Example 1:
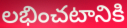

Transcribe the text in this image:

లభించటానికి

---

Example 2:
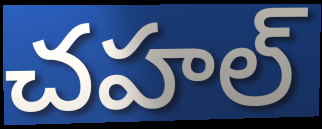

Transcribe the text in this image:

చహల్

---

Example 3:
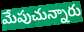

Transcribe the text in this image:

మేపుచున్నారు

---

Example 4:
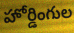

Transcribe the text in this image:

హోర్డింగుల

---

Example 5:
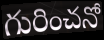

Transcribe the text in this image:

గురించనో